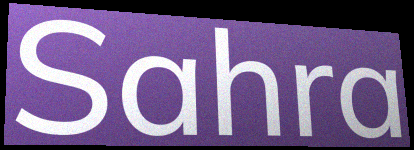
Sahra